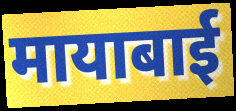
मायाबाई